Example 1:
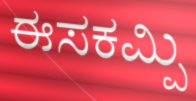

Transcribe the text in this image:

ಈಸಕಮ್ಪಿ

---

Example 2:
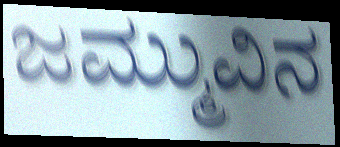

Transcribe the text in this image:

ಜಮ್ಮುವಿನ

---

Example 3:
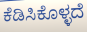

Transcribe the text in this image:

ಕೆಡಿಸಿಕೊಳ್ಳದೆ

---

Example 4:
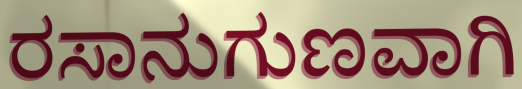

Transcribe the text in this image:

ರಸಾನುಗುಣವಾಗಿ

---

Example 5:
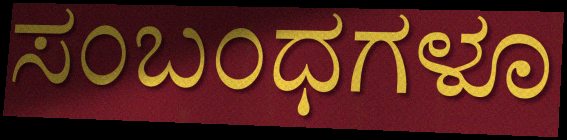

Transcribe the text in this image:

ಸಂಬಂಧಗಳೂ